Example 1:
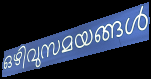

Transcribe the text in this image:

ഒഴിവുസമയങ്ങൾ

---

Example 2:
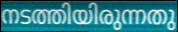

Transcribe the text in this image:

നടത്തിയിരുന്നതു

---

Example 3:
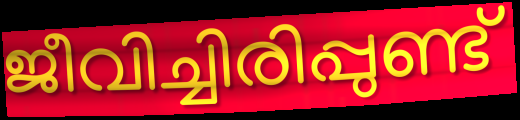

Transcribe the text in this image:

ജീവിച്ചിരിപ്പുണ്ട്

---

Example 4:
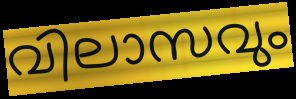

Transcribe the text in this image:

വിലാസവും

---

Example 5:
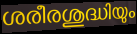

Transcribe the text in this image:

ശരീരശുദ്ധിയും